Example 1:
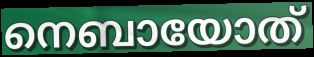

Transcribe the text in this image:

നെബായോത്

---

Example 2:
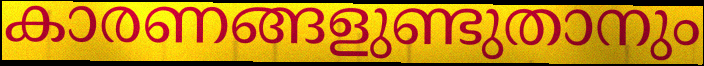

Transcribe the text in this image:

കാരണങ്ങളുണ്ടുതാനും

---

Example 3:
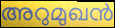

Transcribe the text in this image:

അറുമുഖൻ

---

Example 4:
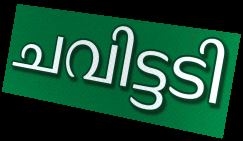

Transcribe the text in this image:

ചവിട്ടടി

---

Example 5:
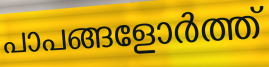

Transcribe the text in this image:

പാപങ്ങളോർത്ത്